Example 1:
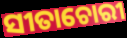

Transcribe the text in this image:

ସୀତାଚୋରୀ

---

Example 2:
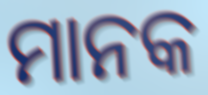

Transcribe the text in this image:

ମାନକ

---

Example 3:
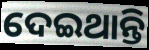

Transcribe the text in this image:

ଦେଇଥାନ୍ତି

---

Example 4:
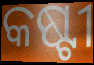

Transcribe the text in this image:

କଷ୍ଟୀ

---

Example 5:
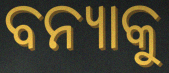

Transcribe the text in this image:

ବନ୍ୟାକୁ